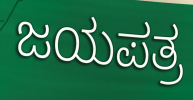
ಜಯಪತ್ರ